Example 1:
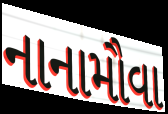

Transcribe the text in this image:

નાનામૌવા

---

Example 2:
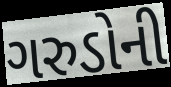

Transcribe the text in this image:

ગરુડોની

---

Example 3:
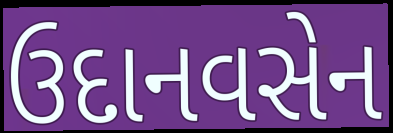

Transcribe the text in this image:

ઉદાનવસેન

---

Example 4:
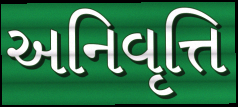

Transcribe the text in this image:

અનિવૃત્તિ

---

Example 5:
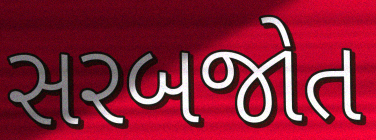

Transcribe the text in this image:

સરબજોત